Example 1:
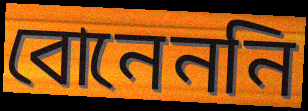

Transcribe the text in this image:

বোনেননি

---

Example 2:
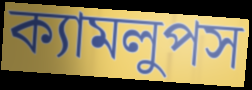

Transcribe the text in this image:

ক্যামলুপস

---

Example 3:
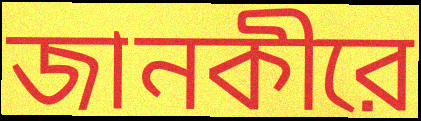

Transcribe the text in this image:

জানকীরে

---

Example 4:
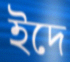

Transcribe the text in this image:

ইদে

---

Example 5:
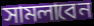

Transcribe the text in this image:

সামলাবেন